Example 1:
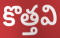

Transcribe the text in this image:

కొత్తవి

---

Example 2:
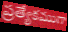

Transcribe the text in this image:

ప్రత్యేకముగా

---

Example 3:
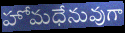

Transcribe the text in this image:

హోమధేనువుగా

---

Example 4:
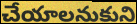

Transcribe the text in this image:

చేయాలనుకుని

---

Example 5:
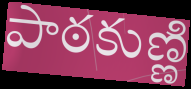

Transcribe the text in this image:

పాఠకుణ్ణి